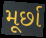
મૂર્છા